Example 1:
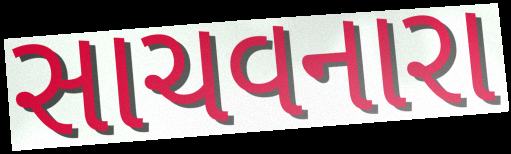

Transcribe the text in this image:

સાચવનારા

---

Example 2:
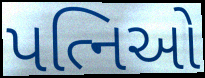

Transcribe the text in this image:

પત્નિઓ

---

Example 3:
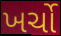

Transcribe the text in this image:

ખર્ચો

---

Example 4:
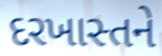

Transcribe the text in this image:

દરખાસ્તને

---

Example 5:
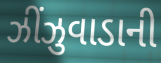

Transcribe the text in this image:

ઝીંઝુવાડાની